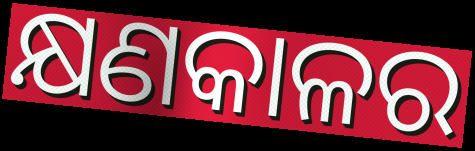
କ୍ଷଣକାଳର